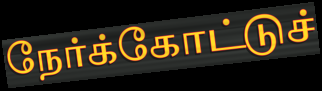
நேர்க்கோட்டுச்